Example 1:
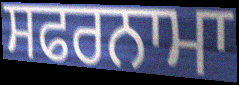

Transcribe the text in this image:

ਸਫਰਨਾਮਾ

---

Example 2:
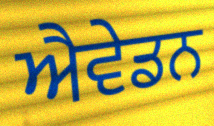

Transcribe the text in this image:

ਐਵੇਡਨ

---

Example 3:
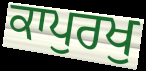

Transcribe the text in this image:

ਕਾਪੁਰਖੁ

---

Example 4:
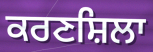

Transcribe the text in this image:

ਕਰਣਸ਼ਿਲਾ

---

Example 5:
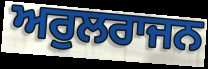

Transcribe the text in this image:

ਅਰੁਲਰਾਜਨ